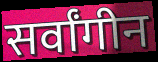
सर्वांगीन